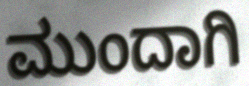
ಮುಂದಾಗಿ